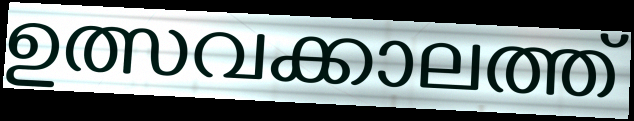
ഉത്സവക്കാലത്ത്